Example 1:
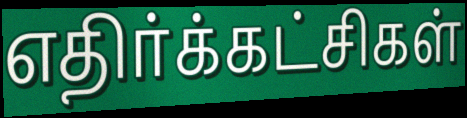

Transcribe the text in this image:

எதிர்க்கட்சிகள்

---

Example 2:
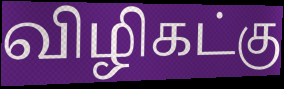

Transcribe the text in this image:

விழிகட்கு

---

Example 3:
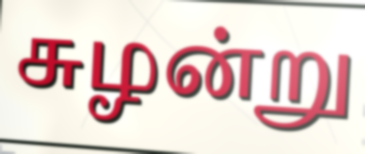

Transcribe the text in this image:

சுழன்று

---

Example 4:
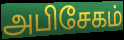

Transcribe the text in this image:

அபிசேகம்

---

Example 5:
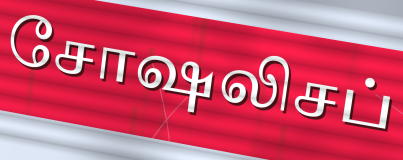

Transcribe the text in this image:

சோஷலிசப்